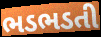
ભડભડતી